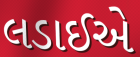
લડાઈએ